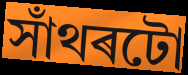
সাঁথৰটো